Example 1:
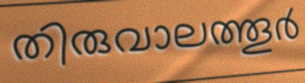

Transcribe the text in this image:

തിരുവാലത്തൂർ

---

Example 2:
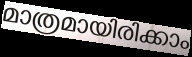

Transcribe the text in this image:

മാത്രമായിരിക്കാം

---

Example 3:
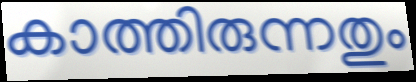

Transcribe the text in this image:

കാത്തിരുന്നതും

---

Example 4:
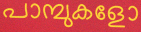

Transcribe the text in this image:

പാമ്പുകളോ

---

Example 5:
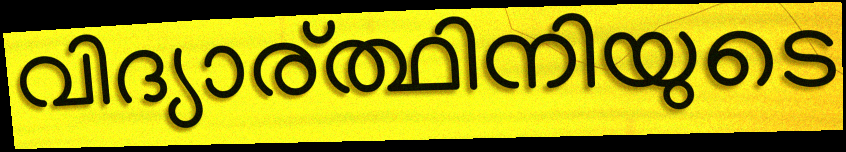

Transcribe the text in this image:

വിദ്യാര്ത്ഥിനിയുടെ